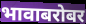
भावाबरोबर